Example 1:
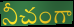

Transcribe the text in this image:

నీచంగా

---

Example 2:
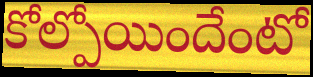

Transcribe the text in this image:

కోల్పోయిందేంటో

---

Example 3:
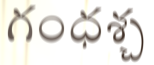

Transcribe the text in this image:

గంధశ్చ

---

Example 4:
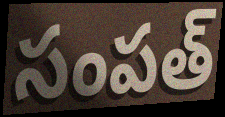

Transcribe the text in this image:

సంపత్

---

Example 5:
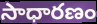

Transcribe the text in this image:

సాధారణం